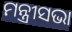
ମନ୍ତ୍ରୀସଭା